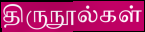
திருநூல்கள்